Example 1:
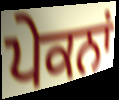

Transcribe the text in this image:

ਪੇਕਨਾਂ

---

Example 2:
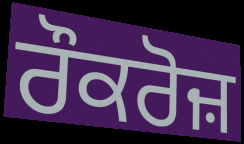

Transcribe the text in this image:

ਰੌਕਰੋਜ਼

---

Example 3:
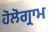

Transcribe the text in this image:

ਹੋਲੋਗ੍ਰਾਮ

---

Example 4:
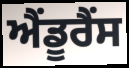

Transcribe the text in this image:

ਐਂਡੂਰੈਂਸ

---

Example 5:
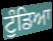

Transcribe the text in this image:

ਟੁੰਡਿਆ